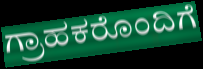
ಗ್ರಾಹಕರೊಂದಿಗೆ